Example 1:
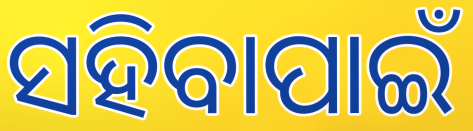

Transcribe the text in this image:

ସହିବାପାଇଁ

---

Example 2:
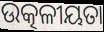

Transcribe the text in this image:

ଉତ୍କଳୀୟତା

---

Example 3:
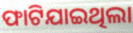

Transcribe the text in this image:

ଫାଟିଯାଇଥିଲା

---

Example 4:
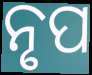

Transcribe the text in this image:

ନୃପ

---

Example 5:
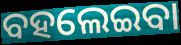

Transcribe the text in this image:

ବହଲେଇବା